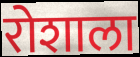
रोशाला